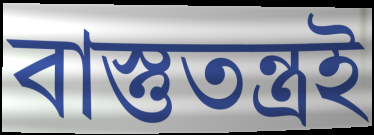
বাস্তুতন্ত্রই